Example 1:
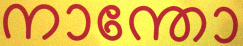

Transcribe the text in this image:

നാന്തോ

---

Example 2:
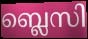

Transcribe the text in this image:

ബ്ലെസി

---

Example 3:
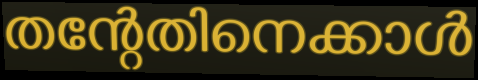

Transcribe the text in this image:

തന്റേതിനെക്കാൾ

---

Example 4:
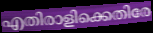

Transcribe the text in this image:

എതിരാളിക്കെതിരേ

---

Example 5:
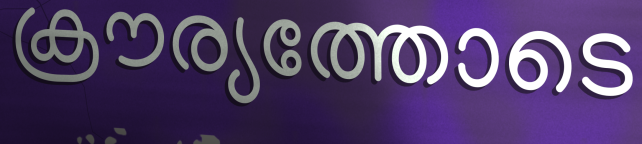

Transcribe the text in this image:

ക്രൗര്യത്തോടെ